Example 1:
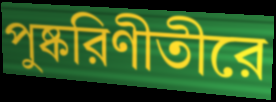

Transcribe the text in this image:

পুষ্করিণীতীরে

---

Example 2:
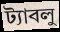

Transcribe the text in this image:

ট্যাবলু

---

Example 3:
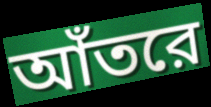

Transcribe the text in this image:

আঁতরে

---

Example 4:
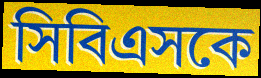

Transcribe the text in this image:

সিবিএসকে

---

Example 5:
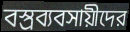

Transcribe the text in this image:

বস্ত্রব্যবসায়ীদের